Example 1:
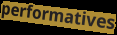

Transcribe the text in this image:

performatives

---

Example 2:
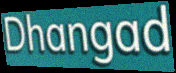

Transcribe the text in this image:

Dhangad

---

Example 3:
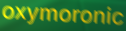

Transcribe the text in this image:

oxymoronic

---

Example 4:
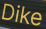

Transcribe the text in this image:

Dike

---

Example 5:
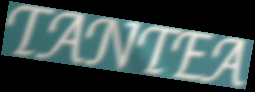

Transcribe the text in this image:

TANTEA